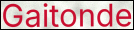
Gaitonde